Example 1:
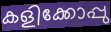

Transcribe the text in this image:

കളിക്കോപ്പു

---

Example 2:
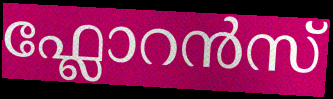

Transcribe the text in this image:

ഫ്ലോറൻസ്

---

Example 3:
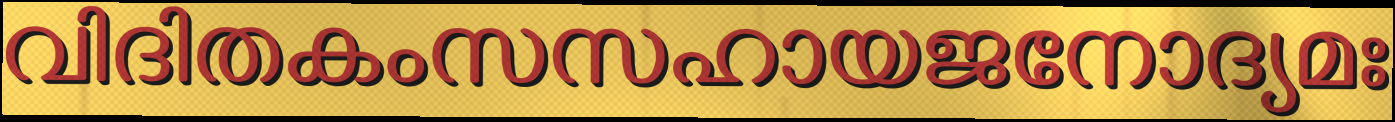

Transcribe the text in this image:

വിദിതകംസസഹായജനോദ്യമഃ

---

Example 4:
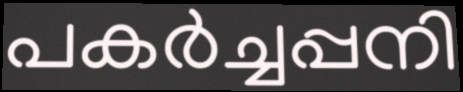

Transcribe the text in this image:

പകർച്ചപ്പനി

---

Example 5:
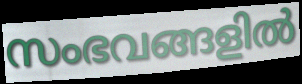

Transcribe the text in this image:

സംഭവങ്ങളിൽ